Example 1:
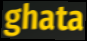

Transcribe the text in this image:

ghata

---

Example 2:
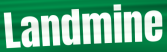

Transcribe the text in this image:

Landmine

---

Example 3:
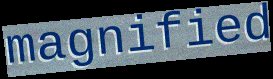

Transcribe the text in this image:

magnified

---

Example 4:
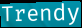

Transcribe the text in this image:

Trendy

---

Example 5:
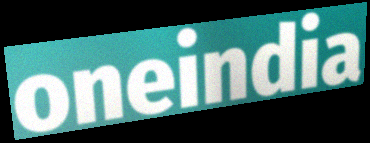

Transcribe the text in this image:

oneindia